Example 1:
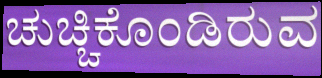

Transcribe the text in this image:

ಚುಚ್ಚಿಕೊಂಡಿರುವ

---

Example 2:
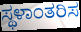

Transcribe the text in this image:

ಸ್ಥಳಾಂತರಿಸ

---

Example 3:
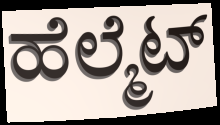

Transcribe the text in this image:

ಹೆಲ್ಮೆಟ್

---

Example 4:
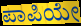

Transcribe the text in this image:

ಪಾಪಿಯೇ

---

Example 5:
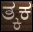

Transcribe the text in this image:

ತ್ಕಕ